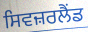
ਸਿਵਜ਼ਰਲੈਂਡ